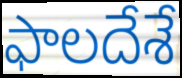
ఫాలదేశే